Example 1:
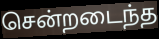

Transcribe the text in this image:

சென்றடைந்த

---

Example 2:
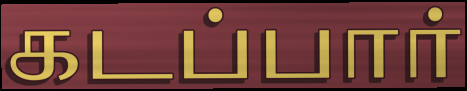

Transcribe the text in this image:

கடப்பார்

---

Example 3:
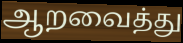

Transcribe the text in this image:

ஆறவைத்து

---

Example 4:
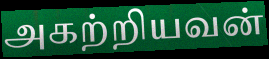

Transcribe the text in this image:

அகற்றியவன்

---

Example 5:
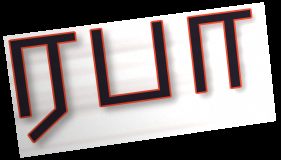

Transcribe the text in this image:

ரபா